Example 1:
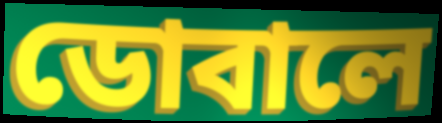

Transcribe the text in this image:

ডোবালে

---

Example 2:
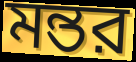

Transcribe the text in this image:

মন্তর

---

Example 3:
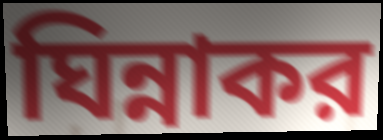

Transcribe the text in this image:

ঘিন্নাকর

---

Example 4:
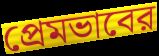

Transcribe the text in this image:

প্রেমভাবের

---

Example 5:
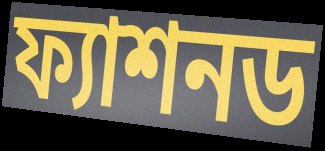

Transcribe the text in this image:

ফ্যাশনড